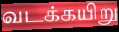
வடக்கயிறு